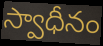
స్వాధీనం